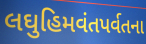
લઘુહિમવંતપર્વતના